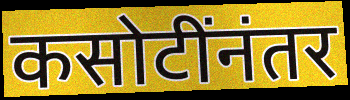
कसोटींनंतर